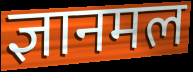
ज्ञानमल